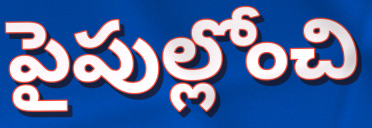
పైపుల్లోంచి